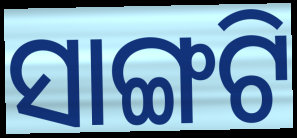
ସାଙ୍ଗଟି